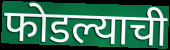
फोडल्याची